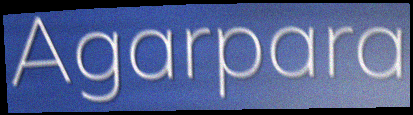
Agarpara